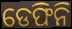
ଡେଫିନି